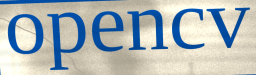
opencv